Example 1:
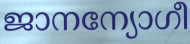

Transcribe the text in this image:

ജാനന്യോഗീ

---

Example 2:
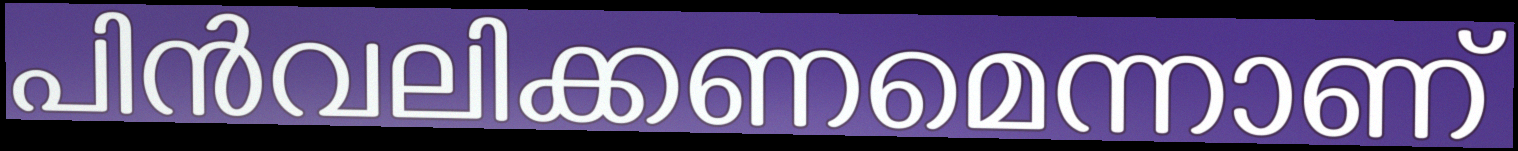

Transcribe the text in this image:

പിൻവലിക്കണമെന്നാണ്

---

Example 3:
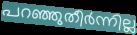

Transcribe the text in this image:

പറഞ്ഞുതീർന്നില്ല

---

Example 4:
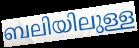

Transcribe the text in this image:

ബലിയിലുള്ള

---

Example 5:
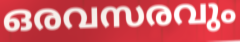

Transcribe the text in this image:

ഒരവസരവും